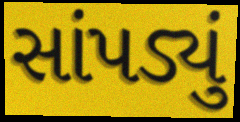
સાંપડ્યું